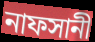
নাফসানী